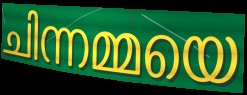
ചിന്നമ്മയെ